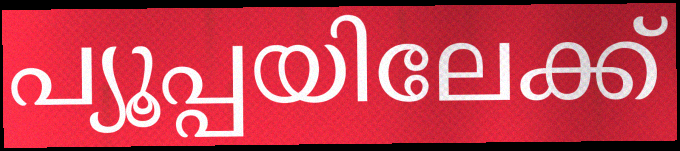
പ്യൂപ്പയിലേക്ക്